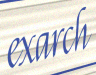
exarch